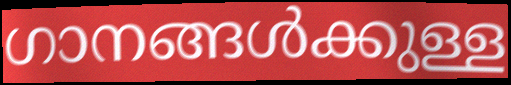
ഗാനങ്ങൾക്കുള്ള